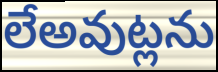
లేఅవుట్లను